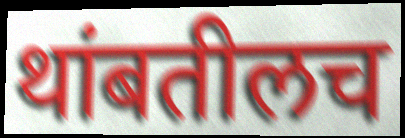
थांबतीलच